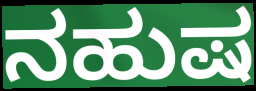
ನಹುಷ